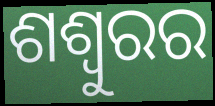
ଶଶ୍ୱୁରର